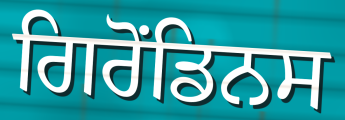
ਗਿਰੋਂਡਿਨਸ